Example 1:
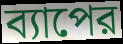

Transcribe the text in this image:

ব্যাপের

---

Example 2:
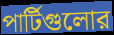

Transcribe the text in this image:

পার্টিগুলোর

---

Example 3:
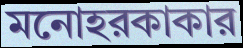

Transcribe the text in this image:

মনোহরকাকার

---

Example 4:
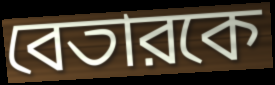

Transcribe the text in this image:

বেতারকে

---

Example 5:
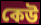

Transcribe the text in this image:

কেউ